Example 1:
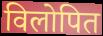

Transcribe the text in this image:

विलोपित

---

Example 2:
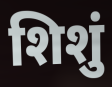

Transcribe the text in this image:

शिशुं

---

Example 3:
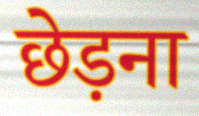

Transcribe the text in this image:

छेड़ना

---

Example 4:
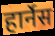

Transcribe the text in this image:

हार्नेस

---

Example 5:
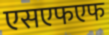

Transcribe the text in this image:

एसएफएफ